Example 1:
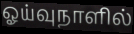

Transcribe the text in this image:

ஓய்வுநாளில்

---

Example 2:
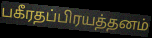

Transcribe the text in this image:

பகீரதப்பிரயத்தனம்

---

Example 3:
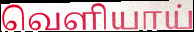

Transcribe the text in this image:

வெளியாய்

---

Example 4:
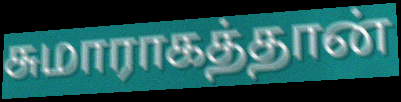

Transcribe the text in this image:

சுமாராகத்தான்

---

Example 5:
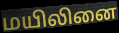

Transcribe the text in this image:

மயிலினை